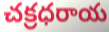
చక్రధరాయ